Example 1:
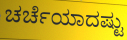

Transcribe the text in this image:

ಚರ್ಚೆಯಾದಷ್ಟು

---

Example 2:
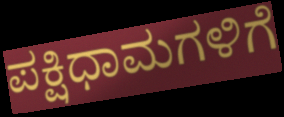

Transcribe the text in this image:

ಪಕ್ಷಿಧಾಮಗಳಿಗೆ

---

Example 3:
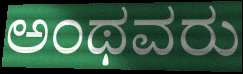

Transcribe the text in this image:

ಅಂಥವರು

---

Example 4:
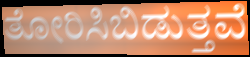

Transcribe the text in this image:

ತೋರಿಸಿಬಿಡುತ್ತವೆ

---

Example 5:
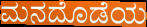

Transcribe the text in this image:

ಮನದೊಡೆಯ